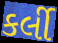
કર્લી